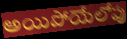
అయిపోయేలోపు